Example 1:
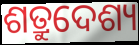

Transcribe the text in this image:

ଶତ୍ରୁଦେଶ୍ୟ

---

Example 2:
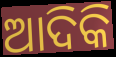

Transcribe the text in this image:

ଆଦିକି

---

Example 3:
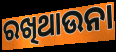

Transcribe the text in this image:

ରଖିଥାଉନା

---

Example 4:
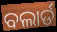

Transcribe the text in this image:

ବଲାର୍ଡ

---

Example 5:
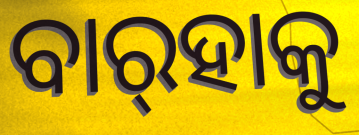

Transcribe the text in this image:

ବାର୍‍ହାକୁ